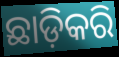
ଛାଡ଼ିକରି